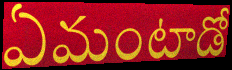
ఏమంటాడో